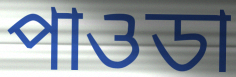
পাওডা